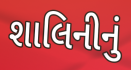
શાલિનીનું